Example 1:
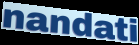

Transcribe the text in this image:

nandati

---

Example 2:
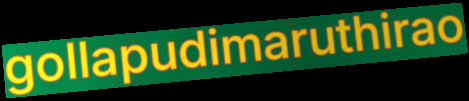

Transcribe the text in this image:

gollapudimaruthirao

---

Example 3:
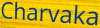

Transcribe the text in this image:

Charvaka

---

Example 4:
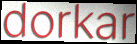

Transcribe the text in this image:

dorkar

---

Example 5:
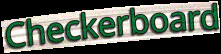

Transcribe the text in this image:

Checkerboard